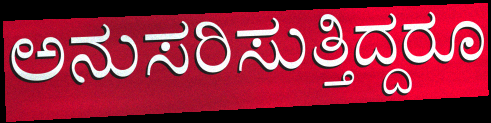
ಅನುಸರಿಸುತ್ತಿದ್ದರೂ